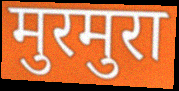
मुरमुरा